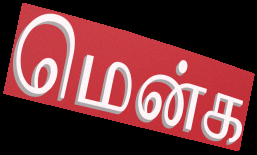
மென்க